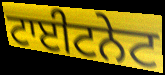
ਟਾਈਟਨੇਟ